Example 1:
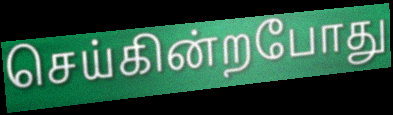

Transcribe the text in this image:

செய்கின்றபோது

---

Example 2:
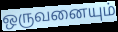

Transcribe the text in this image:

ஒருவனையும்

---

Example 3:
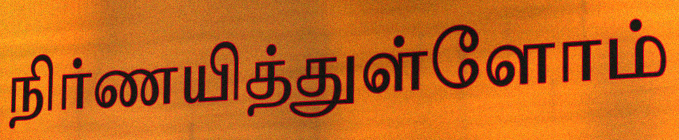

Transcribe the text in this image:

நிர்ணயித்துள்ளோம்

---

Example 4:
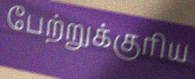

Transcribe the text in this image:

பேற்றுக்குரிய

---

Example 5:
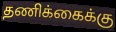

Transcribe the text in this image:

தணிக்கைக்கு